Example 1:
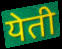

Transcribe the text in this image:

येती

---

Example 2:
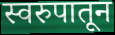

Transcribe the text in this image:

स्वरुपातून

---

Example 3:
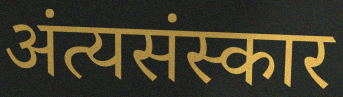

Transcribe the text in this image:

अंत्यसंस्कार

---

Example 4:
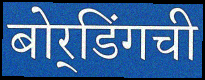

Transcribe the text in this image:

बोर्डिंगची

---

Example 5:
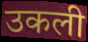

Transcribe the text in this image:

उकली